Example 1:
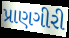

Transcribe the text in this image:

પ્રાણગીરી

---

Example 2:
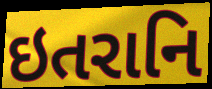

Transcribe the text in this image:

ઇતરાનિ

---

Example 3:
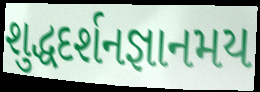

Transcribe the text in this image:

શુદ્ધદર્શનજ્ઞાનમય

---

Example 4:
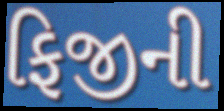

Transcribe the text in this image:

ફિજીની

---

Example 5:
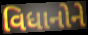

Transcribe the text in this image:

વિધાનોને